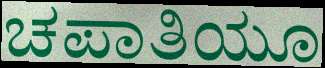
ಚಪಾತಿಯೂ